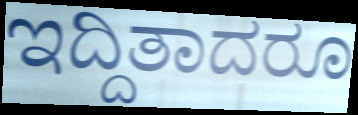
ಇದ್ದಿತಾದರೂ